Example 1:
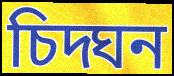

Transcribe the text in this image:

চিদ্ঘন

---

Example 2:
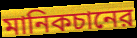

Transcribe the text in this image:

মানিকচানের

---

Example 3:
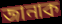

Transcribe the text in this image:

জানাক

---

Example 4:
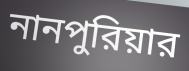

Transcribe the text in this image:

নানপুরিয়ার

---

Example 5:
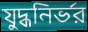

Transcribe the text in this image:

যুদ্ধনির্ভর